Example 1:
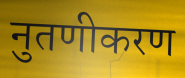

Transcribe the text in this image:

नुतणीकरण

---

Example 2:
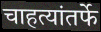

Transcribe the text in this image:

चाहत्यांतर्फे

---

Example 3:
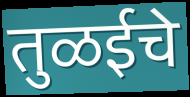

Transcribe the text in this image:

तुळईचे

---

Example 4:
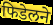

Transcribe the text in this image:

फिडेलने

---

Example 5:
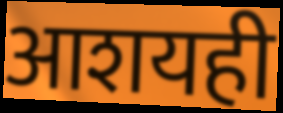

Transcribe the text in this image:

आशयही